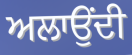
ਅਲਾਉਂਦੀ